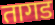
तागड